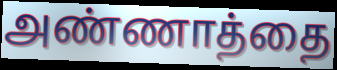
அண்ணாத்தை